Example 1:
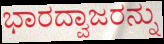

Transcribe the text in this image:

ಭಾರದ್ವಾಜರನ್ನು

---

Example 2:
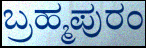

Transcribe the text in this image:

ಬ್ರಹ್ಮಪುರಂ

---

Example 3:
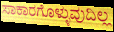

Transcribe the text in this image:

ಸಾಕಾರಗೊಳ್ಳುವುದಿಲ್ಲ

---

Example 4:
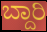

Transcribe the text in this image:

ಬ್ದಾರಿ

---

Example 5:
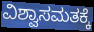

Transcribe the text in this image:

ವಿಶ್ವಾಸಮತಕ್ಕೆ